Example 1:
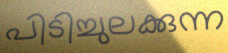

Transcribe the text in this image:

പിടിച്ചുലക്കുന്ന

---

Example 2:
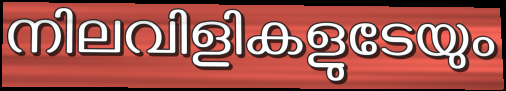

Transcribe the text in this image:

നിലവിളികളുടേയും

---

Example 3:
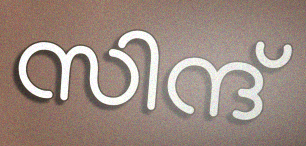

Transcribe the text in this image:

സിന്ദ്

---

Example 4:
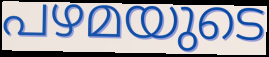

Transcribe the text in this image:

പഴമയുടെ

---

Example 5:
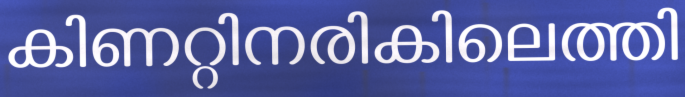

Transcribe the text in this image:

കിണറ്റിനരികിലെത്തി